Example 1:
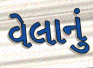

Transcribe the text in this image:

વેલાનું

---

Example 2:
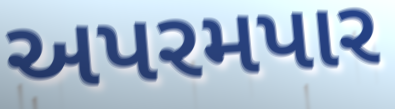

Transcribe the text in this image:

અપરમપાર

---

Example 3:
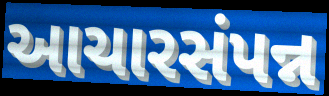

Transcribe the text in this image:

આચારસંપન્ન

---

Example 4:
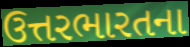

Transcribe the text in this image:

ઉત્તરભારતના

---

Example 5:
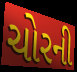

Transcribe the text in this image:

ચોરની